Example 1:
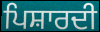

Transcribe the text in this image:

ਪਿਸ਼ਾਰਦੀ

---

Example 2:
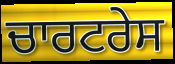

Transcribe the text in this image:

ਚਾਰਟਰੇਸ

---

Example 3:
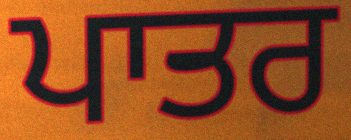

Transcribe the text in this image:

ਪਾਤਰ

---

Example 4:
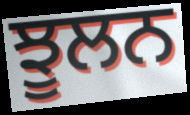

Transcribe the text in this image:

ਝੂਲਨ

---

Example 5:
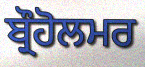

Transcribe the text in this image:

ਬ੍ਰੌਹੋਲਮਰ